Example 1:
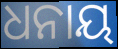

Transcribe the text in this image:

ଧନାୟ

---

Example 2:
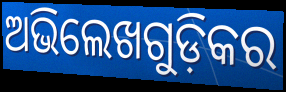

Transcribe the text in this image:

ଅଭିଲେଖଗୁଡ଼ିକର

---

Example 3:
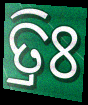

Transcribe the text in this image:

ତ୍ରିଃ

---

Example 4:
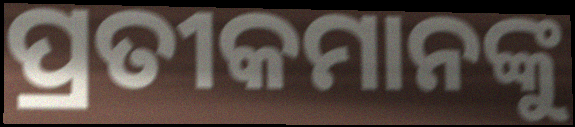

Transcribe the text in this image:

ପ୍ରତୀକମାନଙ୍କୁ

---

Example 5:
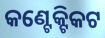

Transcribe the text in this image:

କଣ୍ଟେକ୍ଟିକଟ